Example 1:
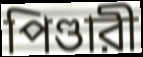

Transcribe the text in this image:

পিণ্ডারী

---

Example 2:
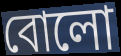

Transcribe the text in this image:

বোলো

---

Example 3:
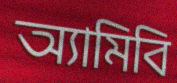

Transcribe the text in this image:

অ্যামিবি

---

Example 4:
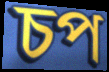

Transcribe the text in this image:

চপ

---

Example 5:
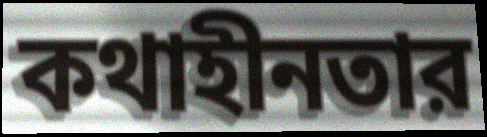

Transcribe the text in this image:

কথাহীনতার